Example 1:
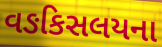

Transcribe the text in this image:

વઙકિસલયના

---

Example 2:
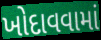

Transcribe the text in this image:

ખોદાવવામાં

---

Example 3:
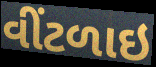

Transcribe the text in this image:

વીંટળાઇ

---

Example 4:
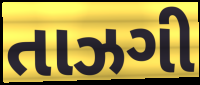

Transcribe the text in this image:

તાઝગી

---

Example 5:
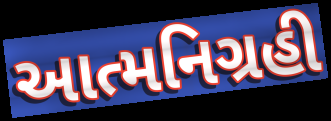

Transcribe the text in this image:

આત્મનિગ્રહી